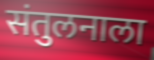
संतुलनाला